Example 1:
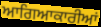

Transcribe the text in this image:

ਆਗਿਆਕਾਰੀਆਂ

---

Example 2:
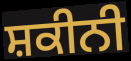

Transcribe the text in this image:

ਸ਼ਕੀਨੀ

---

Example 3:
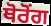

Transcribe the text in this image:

ਥੋਰੋਂਗ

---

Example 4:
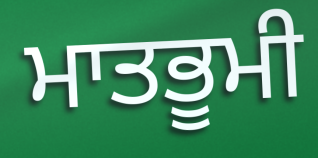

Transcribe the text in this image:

ਮਾਤਭੂਮੀ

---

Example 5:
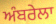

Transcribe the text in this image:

ਅੰਬਰੇਲਾ